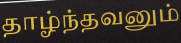
தாழ்ந்தவனும்